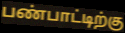
பண்பாட்டிற்கு